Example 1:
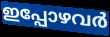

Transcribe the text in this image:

ഇപ്പോഴവർ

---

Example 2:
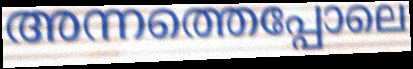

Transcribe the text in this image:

അന്നത്തെപ്പോലെ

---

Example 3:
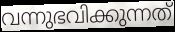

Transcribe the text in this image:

വന്നുഭവിക്കുന്നത്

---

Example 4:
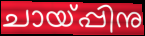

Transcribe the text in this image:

ചായ്പ്പിനു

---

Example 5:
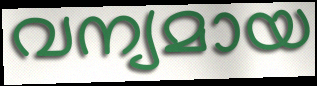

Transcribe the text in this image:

വന്യമായ